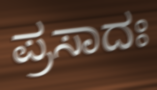
ಪ್ರಸಾದಃ